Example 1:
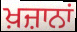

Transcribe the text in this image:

ਖ਼ਜ਼ਾਨਾਂ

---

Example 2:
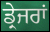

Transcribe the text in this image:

ਡ੍ਰੇਜਰਾਂ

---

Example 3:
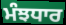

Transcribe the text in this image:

ਮੰਝਧਾਰ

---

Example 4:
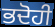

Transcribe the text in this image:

ਭਦੋਹੀ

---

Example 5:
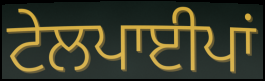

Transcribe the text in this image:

ਟੇਲਪਾਈਪਾਂ